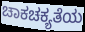
ಚಾಕಚಕ್ಯತೆಯ